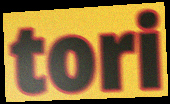
tori